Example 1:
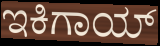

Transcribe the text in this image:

ಇಕಿಗಾಯ್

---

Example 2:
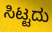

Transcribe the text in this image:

ಸಿಟ್ಟದು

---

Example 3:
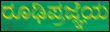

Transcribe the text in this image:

ರೂಢಿಪ್ರಜ್ಞೆಯ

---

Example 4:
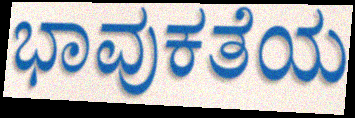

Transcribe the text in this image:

ಭಾವುಕತೆಯ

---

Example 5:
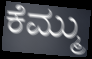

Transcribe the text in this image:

ಕೆಮ್ಮು